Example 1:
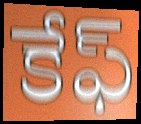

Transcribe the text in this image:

కేఫ్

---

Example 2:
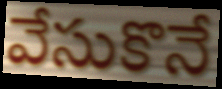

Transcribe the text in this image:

వేసుకొనే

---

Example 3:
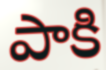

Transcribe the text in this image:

పాకి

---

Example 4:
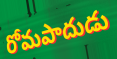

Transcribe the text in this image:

రోమపాదుడు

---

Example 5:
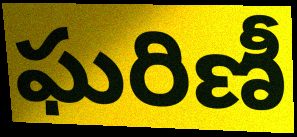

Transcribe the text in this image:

ఘరిణీ